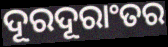
ଦୂରଦୂରାଂତର